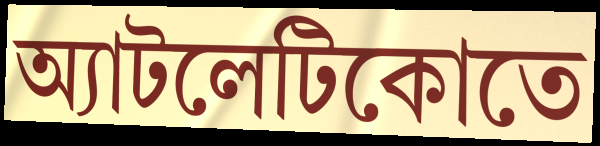
অ্যাটলেটিকোতে